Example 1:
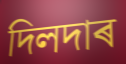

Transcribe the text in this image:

দিলদাৰ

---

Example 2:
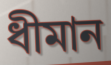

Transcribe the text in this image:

ধীমান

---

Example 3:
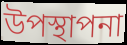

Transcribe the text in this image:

উপস্থাপনা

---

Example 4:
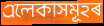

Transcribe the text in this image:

এলেকাসমূহৰ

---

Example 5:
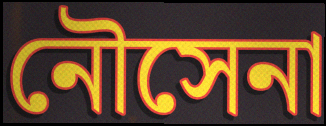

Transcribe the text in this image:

নৌসেনা